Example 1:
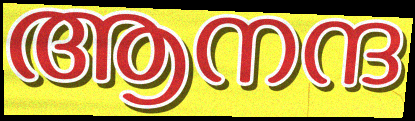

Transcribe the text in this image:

ആനന്ദ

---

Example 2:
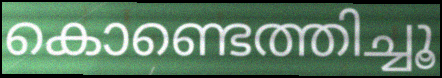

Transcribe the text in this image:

കൊണ്ടെത്തിച്ചൂ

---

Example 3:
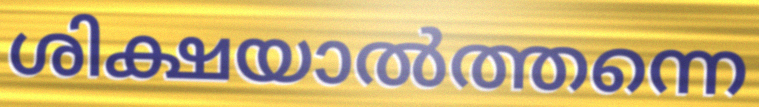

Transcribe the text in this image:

ശിക്ഷയാൽത്തന്നെ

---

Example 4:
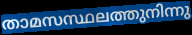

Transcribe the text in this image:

താമസസ്ഥലത്തുനിന്നു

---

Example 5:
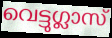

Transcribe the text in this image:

വെട്ടുഗ്ലാസ്